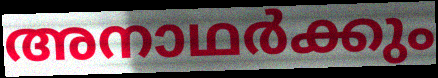
അനാഥർക്കും